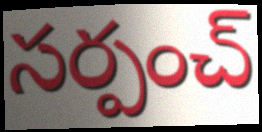
సర్పంచ్